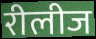
रीलीज